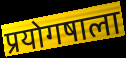
प्रयोगषाला